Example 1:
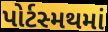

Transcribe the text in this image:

પોર્ટસ્મથમાં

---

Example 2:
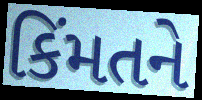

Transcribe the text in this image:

કિંમતને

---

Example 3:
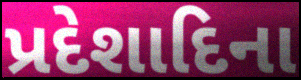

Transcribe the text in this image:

પ્રદેશાદિના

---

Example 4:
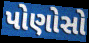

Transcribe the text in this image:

પોણોસો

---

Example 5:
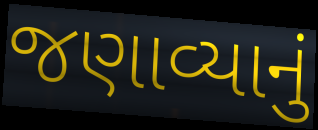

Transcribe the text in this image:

જણાવ્યાનું